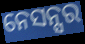
ନେସନ୍ସର